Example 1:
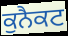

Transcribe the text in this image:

ਕੁਨੈਕਟ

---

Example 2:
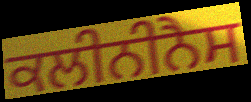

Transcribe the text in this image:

ਕਲੀਨੀਨੈਸ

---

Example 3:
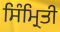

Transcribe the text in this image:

ਸਿੰਮ੍ਰਿਤੀ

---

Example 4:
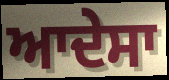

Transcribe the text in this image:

ਆਦੇਸਾ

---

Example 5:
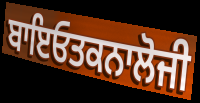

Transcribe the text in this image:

ਬਾਇਓਤਕਨਾਲੋਜੀ